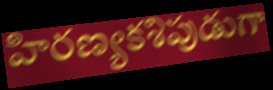
హిరణ్యకశిపుడుగా